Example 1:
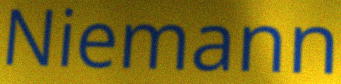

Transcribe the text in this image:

Niemann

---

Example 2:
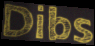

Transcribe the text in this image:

Dibs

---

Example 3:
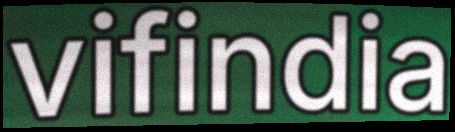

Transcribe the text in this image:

vifindia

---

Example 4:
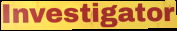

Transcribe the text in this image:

Investigator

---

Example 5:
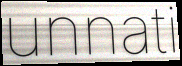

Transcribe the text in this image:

unnati